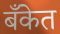
बँकेत